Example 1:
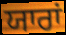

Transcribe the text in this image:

ਯਾਰਾਂ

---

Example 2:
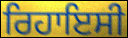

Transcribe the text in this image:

ਰਿਹਾਇਸੀ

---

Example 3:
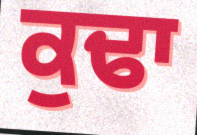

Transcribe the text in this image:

ਕੁਢਾ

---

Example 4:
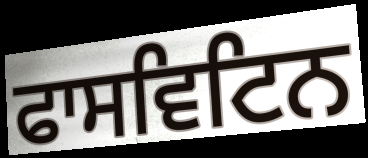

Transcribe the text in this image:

ਫਾਸਵਿਟਿਨ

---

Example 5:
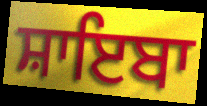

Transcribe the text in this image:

ਸ਼ਾਇਬਾ